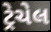
ટ્રેચેલ